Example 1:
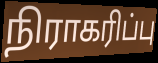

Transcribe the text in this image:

நிராகரிப்பு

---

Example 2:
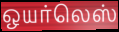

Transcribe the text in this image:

ஒயர்லெஸ்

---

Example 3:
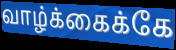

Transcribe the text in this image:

வாழ்க்கைக்கே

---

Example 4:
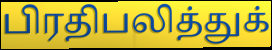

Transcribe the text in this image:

பிரதிபலித்துக்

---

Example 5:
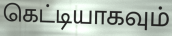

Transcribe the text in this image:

கெட்டியாகவும்